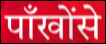
पाँखोंसे